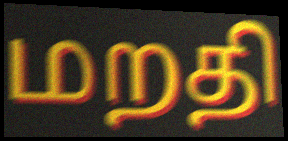
மறதி